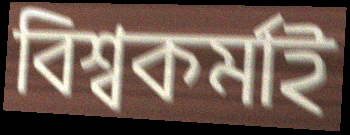
বিশ্বকৰ্মাই